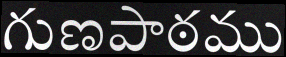
గుణపాఠము